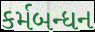
કર્મબન્ધન